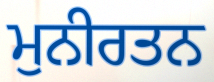
ਮੁਨੀਰਤਨ